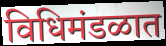
विधिमंडळात